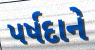
પર્ષદાને